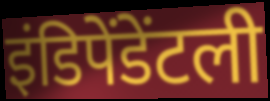
इंडिपेंडेंटली